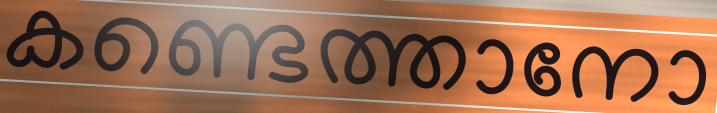
കണ്ടെത്താനോ